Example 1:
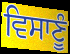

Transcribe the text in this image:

ਵਿਸਾਣੂੰ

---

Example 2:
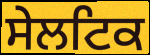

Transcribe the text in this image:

ਸੇਲਟਿਕ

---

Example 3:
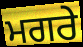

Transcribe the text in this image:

ਮਗਰੇ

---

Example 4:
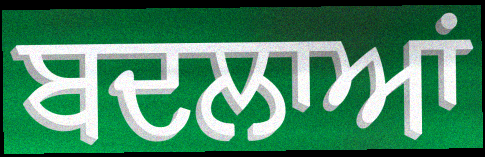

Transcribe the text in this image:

ਬਦਲਾਆਂ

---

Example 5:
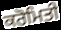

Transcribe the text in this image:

ਕਰੋਮਿਤੀ